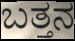
ಬತ್ತನ